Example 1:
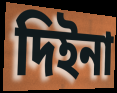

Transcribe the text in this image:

দিইনা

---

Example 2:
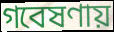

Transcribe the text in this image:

গবেষণায়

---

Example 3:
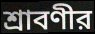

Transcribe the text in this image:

শ্রাবণীর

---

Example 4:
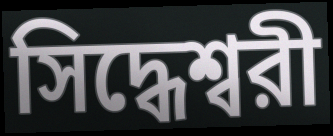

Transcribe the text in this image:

সিদ্ধেশ্বরী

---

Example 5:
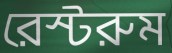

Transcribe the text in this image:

রেস্টরুম